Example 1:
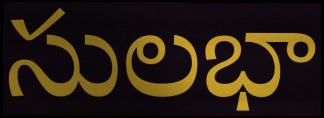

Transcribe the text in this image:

సులభా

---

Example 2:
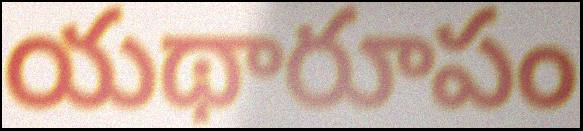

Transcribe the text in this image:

యథారూపం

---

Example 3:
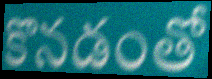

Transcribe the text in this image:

కొనడంతో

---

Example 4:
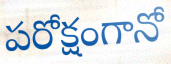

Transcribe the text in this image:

పరోక్షంగానో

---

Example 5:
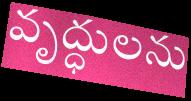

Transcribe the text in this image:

వృద్ధులను